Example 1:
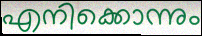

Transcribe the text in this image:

എനിക്കൊന്നും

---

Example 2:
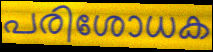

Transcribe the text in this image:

പരിശോധക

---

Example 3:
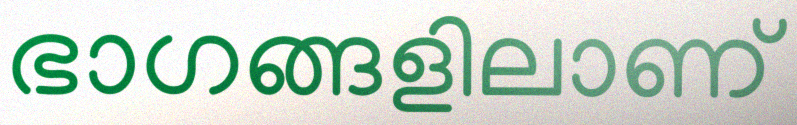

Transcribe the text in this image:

ഭാഗങ്ങളിലാണ്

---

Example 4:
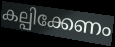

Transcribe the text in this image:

കല്പിക്കേണം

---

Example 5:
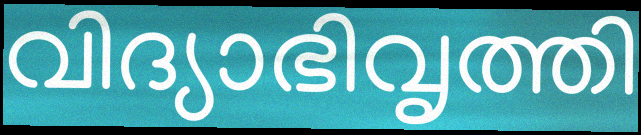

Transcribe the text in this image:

വിദ്യാഭിവൃത്തി